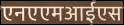
एनएएमआईएस